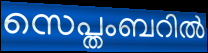
സെപ്തംബറിൽ